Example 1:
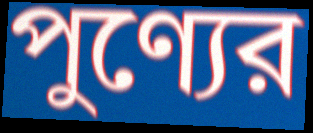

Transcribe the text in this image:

পুণ্যের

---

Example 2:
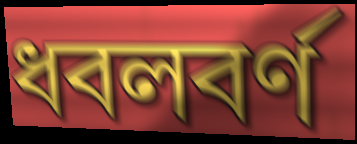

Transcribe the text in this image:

ধবলবর্ণ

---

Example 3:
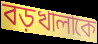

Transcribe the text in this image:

বড়খালাকে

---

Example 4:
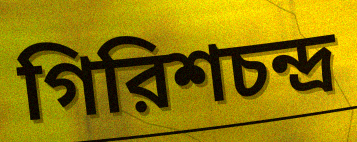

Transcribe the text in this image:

গিরিশচন্দ্র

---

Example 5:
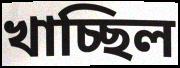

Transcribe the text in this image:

খাচ্ছিল